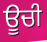
ਊਚੀ